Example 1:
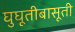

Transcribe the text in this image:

घुघूतीबासूती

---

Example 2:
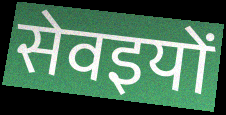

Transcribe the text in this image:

सेवइयों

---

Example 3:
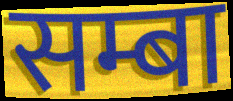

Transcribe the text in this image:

सम्बा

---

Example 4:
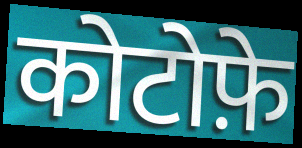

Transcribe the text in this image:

कोटोफ़े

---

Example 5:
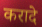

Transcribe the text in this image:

करादे